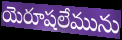
యెరూషలేమును